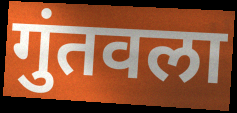
गुंतवला